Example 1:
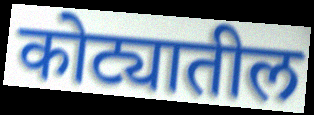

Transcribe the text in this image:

कोट्यातील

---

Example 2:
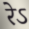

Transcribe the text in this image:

रेऽ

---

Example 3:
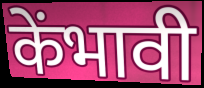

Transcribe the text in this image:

केंभावी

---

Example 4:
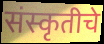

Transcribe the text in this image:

संस्कृतीचे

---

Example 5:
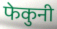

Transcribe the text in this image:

फेकुनी